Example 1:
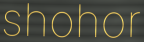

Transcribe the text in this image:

shohor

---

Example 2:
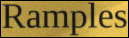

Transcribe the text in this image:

Ramples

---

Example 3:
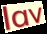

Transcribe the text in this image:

Iav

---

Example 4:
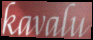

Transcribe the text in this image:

kavalu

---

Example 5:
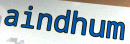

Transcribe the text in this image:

aindhum